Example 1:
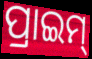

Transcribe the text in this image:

ପ୍ରାଇମ୍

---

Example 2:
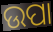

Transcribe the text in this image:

ଉପା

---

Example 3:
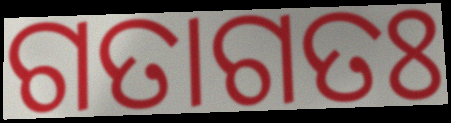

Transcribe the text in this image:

ଗତାଗତଃ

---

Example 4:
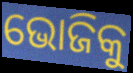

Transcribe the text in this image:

ଭୋଜିକୁ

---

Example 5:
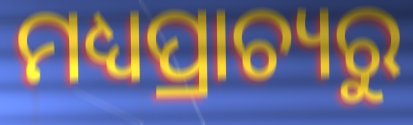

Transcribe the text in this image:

ମଧ୍ୟପ୍ରାଚ୍ୟରୁ